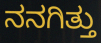
ನನಗಿತ್ತು